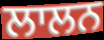
ਲਾਲਨ